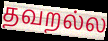
தவறல்ல